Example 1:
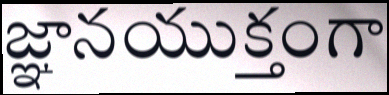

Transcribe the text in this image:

జ్ఞానయుక్తంగా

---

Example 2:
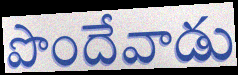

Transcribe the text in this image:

పొందేవాడు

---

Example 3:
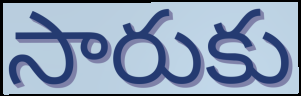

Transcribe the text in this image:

సారుకు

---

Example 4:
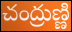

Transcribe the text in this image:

చంద్రుణ్ణి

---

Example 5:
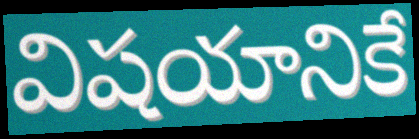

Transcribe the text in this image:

విషయానికే